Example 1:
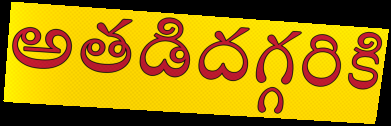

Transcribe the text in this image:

అతడిదగ్గరికి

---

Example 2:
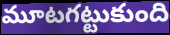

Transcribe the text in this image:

మూటగట్టుకుంది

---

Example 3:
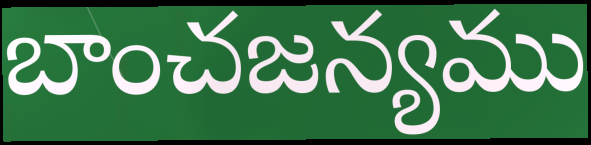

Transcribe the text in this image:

బాంచజన్యము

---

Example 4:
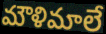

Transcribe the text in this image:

మౌళిమాలే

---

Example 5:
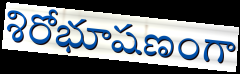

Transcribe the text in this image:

శిరోభూషణంగా